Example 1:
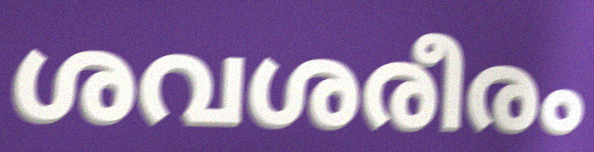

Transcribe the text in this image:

ശവശരീരം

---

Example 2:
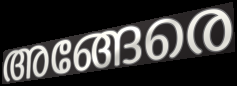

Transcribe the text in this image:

അങ്ങേരെ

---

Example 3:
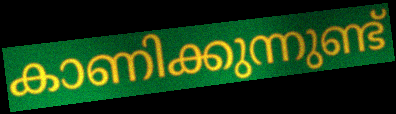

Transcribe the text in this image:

കാണിക്കുന്നുണ്ട്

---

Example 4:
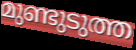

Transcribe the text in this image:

മുണ്ടുടുത്ത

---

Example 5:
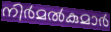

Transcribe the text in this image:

നിർമൽകുമാർ